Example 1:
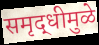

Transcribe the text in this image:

समृद्धीमुळे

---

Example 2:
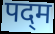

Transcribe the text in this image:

पद्‌म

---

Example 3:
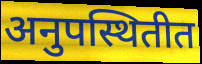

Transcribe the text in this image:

अनुपस्थितीत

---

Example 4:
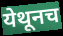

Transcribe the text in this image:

येथूनच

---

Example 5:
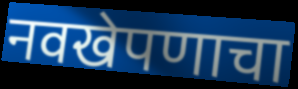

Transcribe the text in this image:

नवखेपणाचा